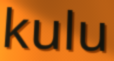
kulu